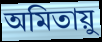
অমিতায়ু